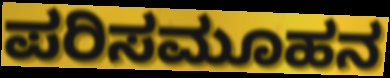
ಪರಿಸಮೂಹನ